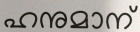
ഹനുമാന്